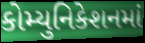
કોમ્યુનિકેશનમાં